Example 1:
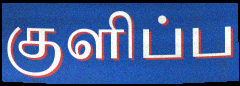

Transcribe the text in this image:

குளிப்ப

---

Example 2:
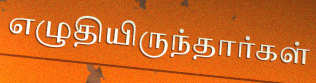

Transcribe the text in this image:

எழுதியிருந்தார்கள்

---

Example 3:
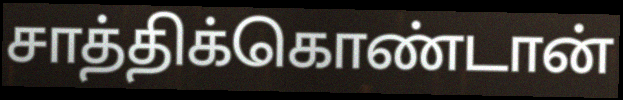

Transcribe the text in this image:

சாத்திக்கொண்டான்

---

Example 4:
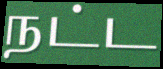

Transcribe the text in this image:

நட்ட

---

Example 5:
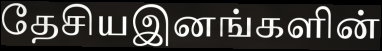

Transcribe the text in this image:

தேசியஇனங்களின்